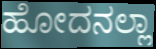
ಹೋದನಲ್ಲಾ